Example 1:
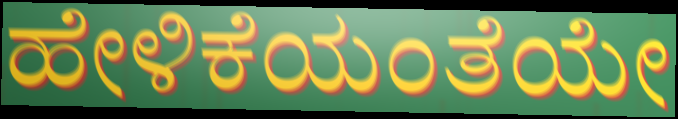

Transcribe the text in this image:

ಹೇಳಿಕೆಯಂತೆಯೇ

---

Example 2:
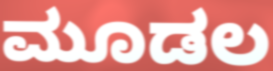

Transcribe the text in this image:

ಮೂಡಲ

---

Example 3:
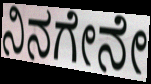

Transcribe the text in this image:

ನಿನಗೇನೇ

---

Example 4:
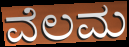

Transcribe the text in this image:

ವೆಲಮ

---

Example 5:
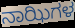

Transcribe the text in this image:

ನಾಝಿಗಳ